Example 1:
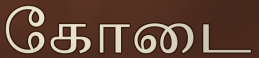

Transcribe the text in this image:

கோடை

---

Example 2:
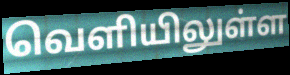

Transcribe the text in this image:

வெளியிலுள்ள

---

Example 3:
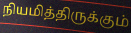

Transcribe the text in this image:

நியமித்திருக்கும்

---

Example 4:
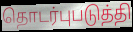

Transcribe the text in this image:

தொடர்புபடுத்தி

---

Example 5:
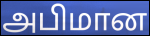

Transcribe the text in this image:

அபிமான